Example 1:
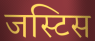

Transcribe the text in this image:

जस्टिस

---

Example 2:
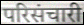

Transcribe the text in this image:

परिसंचारी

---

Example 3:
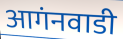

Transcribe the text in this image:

आगंनवाडी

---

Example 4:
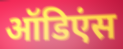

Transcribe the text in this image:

ऑडिएंस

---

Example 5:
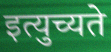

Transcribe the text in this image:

इत्युच्यते